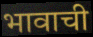
भावाची